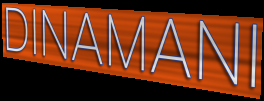
DINAMANI